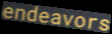
endeavors